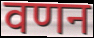
वणन